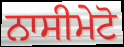
ਨਾਸੀਮੇਟੋ